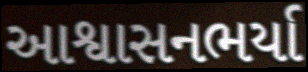
આશ્વાસનભર્યા